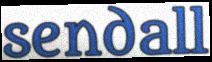
sendall